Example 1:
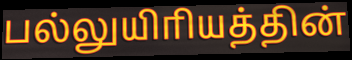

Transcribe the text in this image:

பல்லுயிரியத்தின்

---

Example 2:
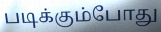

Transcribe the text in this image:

படிக்கும்போது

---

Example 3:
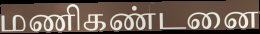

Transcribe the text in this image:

மணிகண்டனை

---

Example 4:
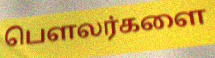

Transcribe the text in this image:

பௌலர்களை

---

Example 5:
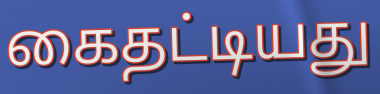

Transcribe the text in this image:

கைதட்டியது